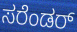
ಸರೆಂಡರ್